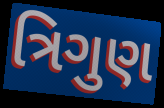
ત્રિગુણ